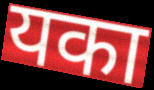
यका